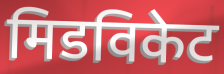
मिडविकेट